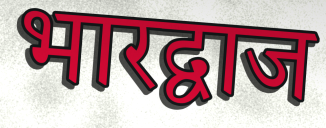
भारद्वाज